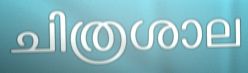
ചിത്രശാല